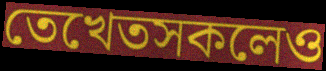
তেখেতসকলেও